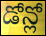
డోన్లో